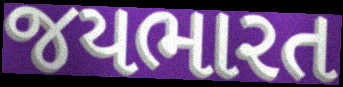
જયભારત